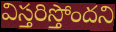
విస్తరిస్తోందని